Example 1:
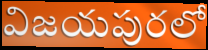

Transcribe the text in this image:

విజయపురలో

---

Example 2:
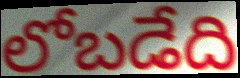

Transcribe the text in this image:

లోబడేది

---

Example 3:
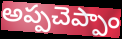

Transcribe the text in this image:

అప్పచెప్పాం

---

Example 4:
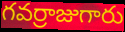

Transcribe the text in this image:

గవర్రాజుగారు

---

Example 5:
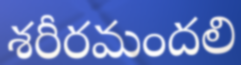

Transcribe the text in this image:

శరీరమందలి